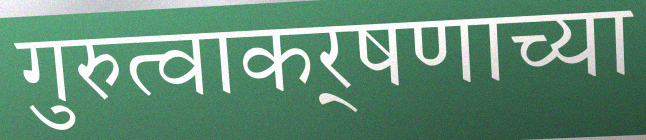
गुरुत्वाकर्षणाच्या